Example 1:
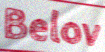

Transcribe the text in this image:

Belov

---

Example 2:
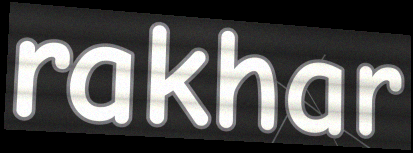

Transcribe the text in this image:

rakhar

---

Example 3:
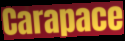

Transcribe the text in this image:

Carapace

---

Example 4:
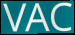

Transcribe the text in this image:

VAC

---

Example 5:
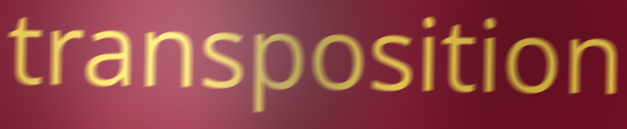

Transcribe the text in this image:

transposition